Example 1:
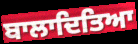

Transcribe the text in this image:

ਬਾਲਾਦਿਤਿਆ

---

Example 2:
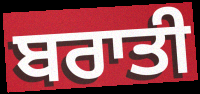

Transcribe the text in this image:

ਬਰਾਤੀ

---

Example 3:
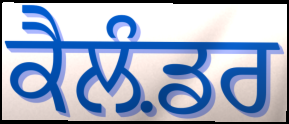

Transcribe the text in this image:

ਕੈਲ਼ੰਡਰ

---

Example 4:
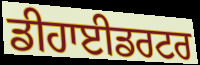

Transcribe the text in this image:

ਡੀਹਾਈਡਰਟਰ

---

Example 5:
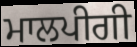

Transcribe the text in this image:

ਮਾਲਪੀਗੀ